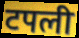
टपली